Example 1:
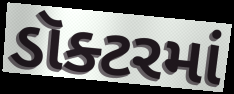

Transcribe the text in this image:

ડૉક્ટરમાં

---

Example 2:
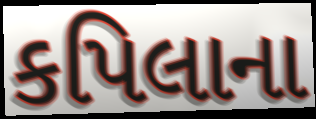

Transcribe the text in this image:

કપિલાના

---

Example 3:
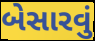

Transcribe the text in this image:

બેસારવું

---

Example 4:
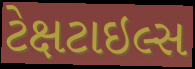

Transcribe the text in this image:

ટેક્ષટાઇલ્સ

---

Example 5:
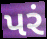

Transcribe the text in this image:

પરં